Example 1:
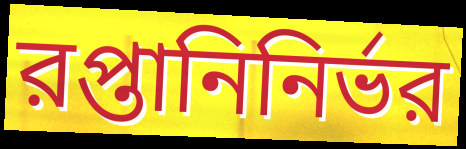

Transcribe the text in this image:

রপ্তানিনির্ভর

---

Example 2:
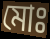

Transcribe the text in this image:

মোঃ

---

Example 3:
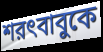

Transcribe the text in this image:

শরৎবাবুকে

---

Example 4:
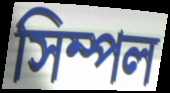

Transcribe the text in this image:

সিম্পল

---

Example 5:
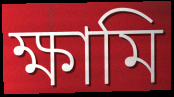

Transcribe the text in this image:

ক্ষামি